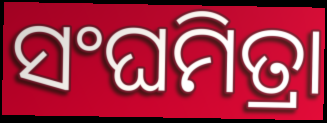
ସଂଘମିତ୍ରା